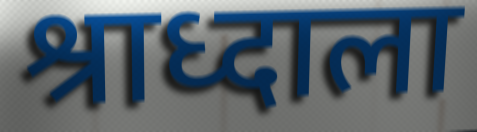
श्राध्दाला